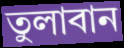
তুলাবান